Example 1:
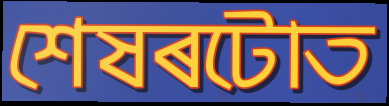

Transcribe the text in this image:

শেষৰটোত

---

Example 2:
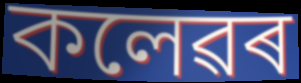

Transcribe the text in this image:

কলেৱৰ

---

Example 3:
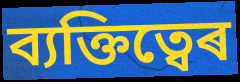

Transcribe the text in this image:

ব্যক্তিত্বেৰ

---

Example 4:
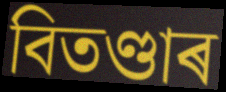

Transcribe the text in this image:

বিতণ্ডাৰ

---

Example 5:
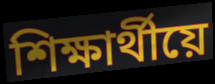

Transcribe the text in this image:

শিক্ষাৰ্থীয়ে